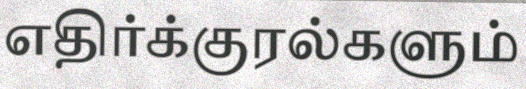
எதிர்க்குரல்களும்